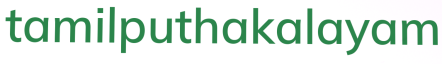
tamilputhakalayam